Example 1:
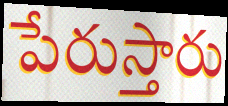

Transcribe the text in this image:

పేరుస్తారు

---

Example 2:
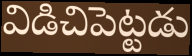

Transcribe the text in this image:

విడిచిపెట్టడు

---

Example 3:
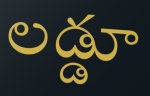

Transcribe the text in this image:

లడ్డూ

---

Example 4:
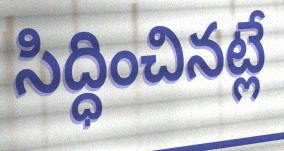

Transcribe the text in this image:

సిద్ధించినట్లే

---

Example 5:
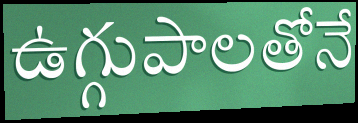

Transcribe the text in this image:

ఉగ్గుపాలతోనే